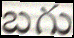
బగు